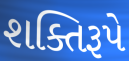
શક્તિરૂપે